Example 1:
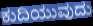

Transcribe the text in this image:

ಕುದಿಯುವುದು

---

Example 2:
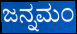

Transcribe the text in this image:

ಜನ್ನಮಂ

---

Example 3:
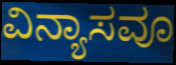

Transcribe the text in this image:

ವಿನ್ಯಾಸವೂ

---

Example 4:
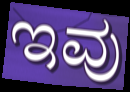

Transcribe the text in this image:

ಇವು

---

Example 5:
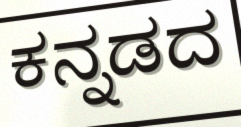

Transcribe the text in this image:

ಕನ್ನಡದ